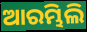
ଆରମ୍ଭିଲି